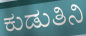
ಕುಡುತಿನಿ